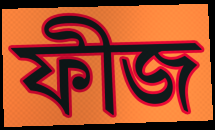
ফীজ